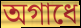
অগাধে